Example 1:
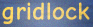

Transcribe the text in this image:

gridlock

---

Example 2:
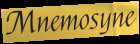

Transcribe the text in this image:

Mnemosyne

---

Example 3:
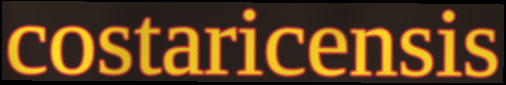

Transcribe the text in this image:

costaricensis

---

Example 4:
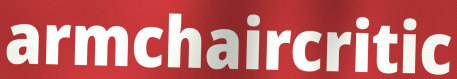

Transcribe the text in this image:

armchaircritic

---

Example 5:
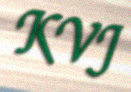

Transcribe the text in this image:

KVJ